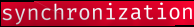
synchronization